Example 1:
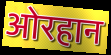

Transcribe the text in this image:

ओरहान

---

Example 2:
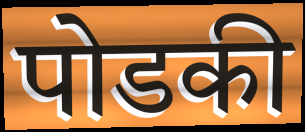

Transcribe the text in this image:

पोडकी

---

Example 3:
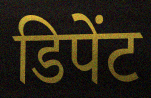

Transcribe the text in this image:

डिपेंट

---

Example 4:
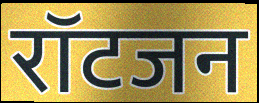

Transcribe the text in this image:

रॉटजन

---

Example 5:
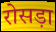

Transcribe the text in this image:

रोसड़ा